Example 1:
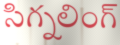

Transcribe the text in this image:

సిగ్నలింగ్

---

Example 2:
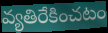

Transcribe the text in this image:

వ్యతిరేకించటం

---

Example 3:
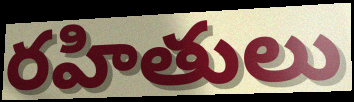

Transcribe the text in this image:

రహితులు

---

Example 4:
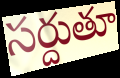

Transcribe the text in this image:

సర్దుతూ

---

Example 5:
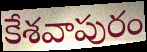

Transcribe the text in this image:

కేశవాపురం